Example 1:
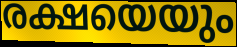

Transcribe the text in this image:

രക്ഷയെയും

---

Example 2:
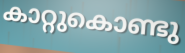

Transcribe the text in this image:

കാറ്റുകൊണ്ടു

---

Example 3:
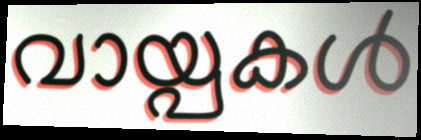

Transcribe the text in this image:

വായ്പകൾ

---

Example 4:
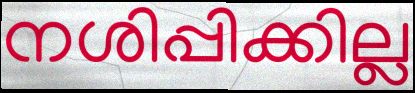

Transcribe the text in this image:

നശിപ്പിക്കില്ല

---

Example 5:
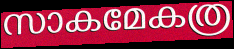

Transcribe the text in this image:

സാകമേകത്ര